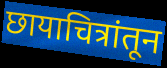
छायाचित्रांतून